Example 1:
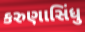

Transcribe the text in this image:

કરુણાસિંધુ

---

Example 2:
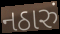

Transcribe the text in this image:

નઠારું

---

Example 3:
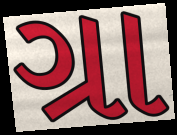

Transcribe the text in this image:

ગ્રા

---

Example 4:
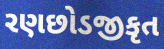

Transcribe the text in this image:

રણછોડજીકૃત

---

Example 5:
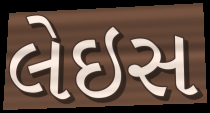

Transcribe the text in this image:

લેઇસ